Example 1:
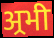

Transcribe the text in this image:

अ्रभी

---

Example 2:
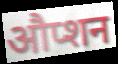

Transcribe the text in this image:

औप्शन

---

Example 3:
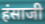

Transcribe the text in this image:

हंसाजी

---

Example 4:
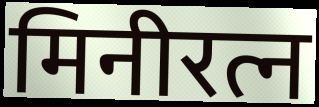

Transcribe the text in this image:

मिनीरत्न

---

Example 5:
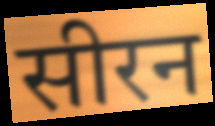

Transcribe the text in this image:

सीरन